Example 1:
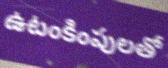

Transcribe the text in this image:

ఉటంకింపులతో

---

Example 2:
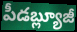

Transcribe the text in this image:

పీడబ్ల్యూజీ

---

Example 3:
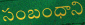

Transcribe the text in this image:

సంబంధాని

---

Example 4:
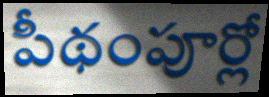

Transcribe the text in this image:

పీథంపూర్లో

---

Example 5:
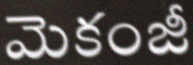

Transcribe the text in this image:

మెకంజీ